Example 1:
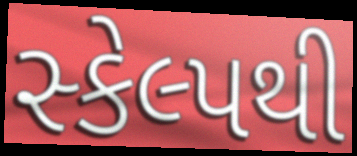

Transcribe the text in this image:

સ્કેલ્પથી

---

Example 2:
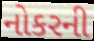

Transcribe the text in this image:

નોકરની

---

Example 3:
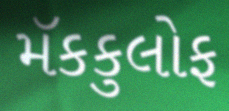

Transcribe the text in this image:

મૅકકુલોફ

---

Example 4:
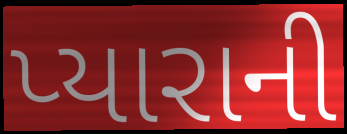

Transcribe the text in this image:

પ્યારાની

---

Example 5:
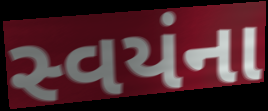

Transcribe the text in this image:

સ્વયંના